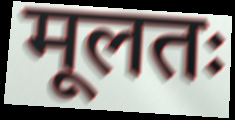
मूलतः